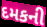
દમકની